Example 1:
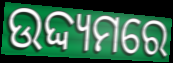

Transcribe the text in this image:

ଉଦ୍ଦ୍ୟମରେ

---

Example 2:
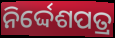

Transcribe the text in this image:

ନିର୍ଦ୍ଦେଶପତ୍ର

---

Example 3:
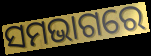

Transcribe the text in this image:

ସମଭାଗରେ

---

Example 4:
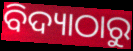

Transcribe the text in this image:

ବିଦ୍ୟାଠାରୁ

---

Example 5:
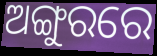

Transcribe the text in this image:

ଅଙ୍ଗୁରରେ